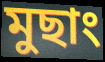
মুছাং